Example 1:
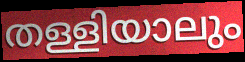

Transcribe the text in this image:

തള്ളിയാലും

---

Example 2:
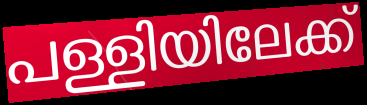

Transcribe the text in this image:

പള്ളിയിലേക്ക്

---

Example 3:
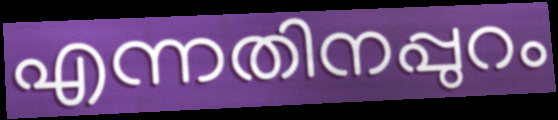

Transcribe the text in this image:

എന്നതിനപ്പുറം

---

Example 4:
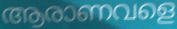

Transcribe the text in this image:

ആരാണവളെ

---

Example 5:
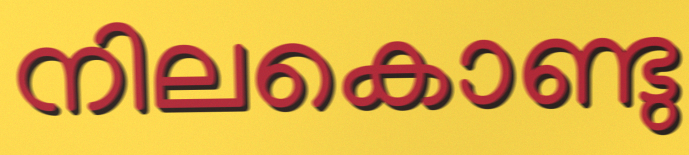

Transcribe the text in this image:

നിലകൊണ്ടു